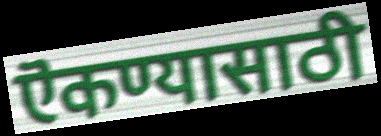
ऎकण्यासाठी